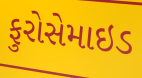
ફુરોસેમાઇડ